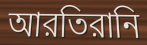
আরতিরানি